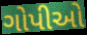
ગોપીઓ